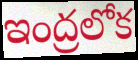
ఇంద్రలోక